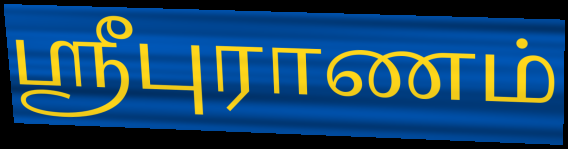
ஸ்ரீபுராணம்